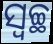
ସ୍ୱଚ୍ଛ